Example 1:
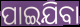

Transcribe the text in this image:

ପାଇଯିବା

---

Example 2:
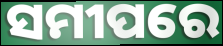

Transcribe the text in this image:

ସମୀପରେ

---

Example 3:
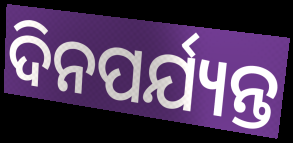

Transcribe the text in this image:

ଦିନପର୍ଯ୍ୟନ୍ତ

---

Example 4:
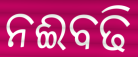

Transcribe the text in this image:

ନଈବଢି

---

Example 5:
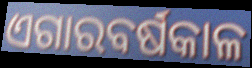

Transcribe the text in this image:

ଏଗାରବର୍ଷକାଳ